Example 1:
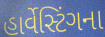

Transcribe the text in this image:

હાર્વેસ્ટિંગના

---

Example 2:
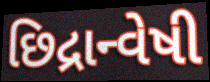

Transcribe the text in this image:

છિદ્રાન્વેષી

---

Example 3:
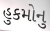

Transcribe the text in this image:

હુકમોનુ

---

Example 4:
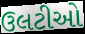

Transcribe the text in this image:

ઉલટીઓ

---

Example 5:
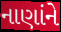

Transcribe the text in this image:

નાણાંને